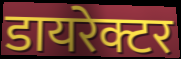
डायरेक्टर